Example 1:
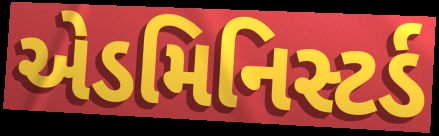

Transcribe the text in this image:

એડમિનિસ્ટર્ડ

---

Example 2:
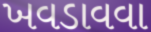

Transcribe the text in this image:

ખવડાવવા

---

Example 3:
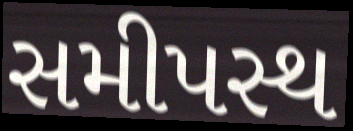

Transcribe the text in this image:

સમીપસ્થ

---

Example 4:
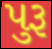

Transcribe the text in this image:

પુરૂ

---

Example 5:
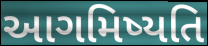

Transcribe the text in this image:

આગમિષ્યતિ